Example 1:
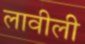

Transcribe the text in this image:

लावीली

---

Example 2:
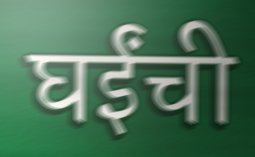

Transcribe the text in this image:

घईंची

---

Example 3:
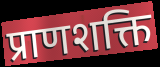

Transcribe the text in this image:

प्राणशक्ति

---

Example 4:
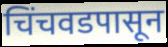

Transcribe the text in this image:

चिंचवडपासून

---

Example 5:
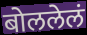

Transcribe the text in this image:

बोललेलं